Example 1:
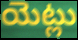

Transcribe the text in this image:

యెట్లు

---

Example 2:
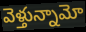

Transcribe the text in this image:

వెళ్తున్నామో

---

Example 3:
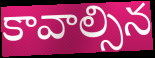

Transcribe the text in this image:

కావాల్సిన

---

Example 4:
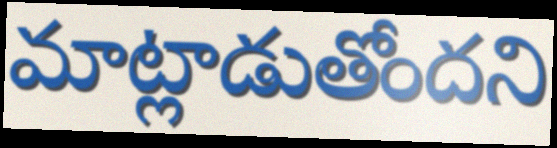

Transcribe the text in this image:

మాట్లాడుతోందని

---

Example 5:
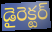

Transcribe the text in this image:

డైరెక్టర్